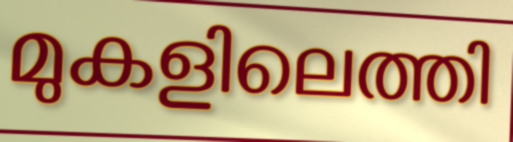
മുകളിലെത്തി